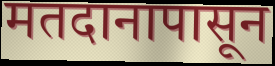
मतदानापासून